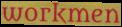
workmen